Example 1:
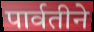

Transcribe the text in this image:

पार्वतीने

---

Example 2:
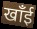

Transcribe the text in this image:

खाँई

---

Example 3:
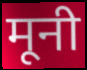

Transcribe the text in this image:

मूनी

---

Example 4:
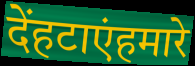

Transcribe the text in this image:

देंहटाएंहमारे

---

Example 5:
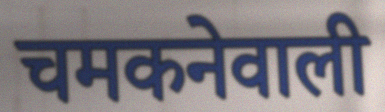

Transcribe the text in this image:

चमकनेवाली